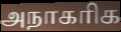
அநாகரிக